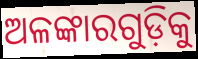
ଅଳଙ୍କାରଗୁଡ଼ିକୁ